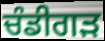
ਚੰਡੀਗਡ਼